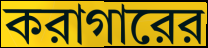
করাগারের